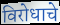
विरोधाचे